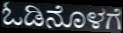
ಓಡಿನೊಳಗೆ